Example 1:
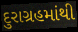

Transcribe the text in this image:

દુરાગ્રહમાંથી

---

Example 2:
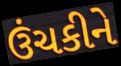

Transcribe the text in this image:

ઉંચકીને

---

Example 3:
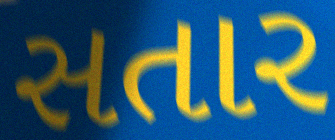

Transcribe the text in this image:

સતાર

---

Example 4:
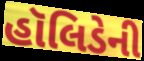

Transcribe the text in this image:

હૉલિડેની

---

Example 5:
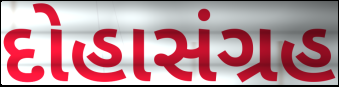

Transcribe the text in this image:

દોહાસંગ્રહ